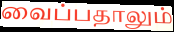
வைப்பதாலும்